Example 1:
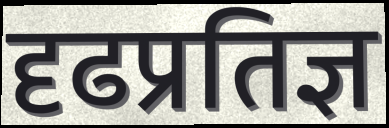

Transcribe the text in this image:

दृढप्रतिज्ञ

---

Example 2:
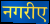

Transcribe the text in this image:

नगरीए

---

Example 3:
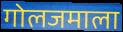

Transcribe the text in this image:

गोलजमाला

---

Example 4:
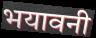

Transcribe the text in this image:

भयावनी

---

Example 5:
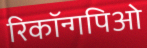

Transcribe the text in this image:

रिकॉन्गपिओ